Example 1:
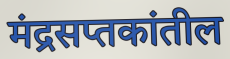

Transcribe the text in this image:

मंद्रसप्तकांतील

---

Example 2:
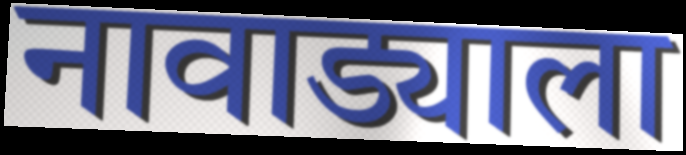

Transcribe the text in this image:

नावाड्याला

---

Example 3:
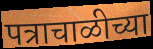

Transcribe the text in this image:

पत्राचाळीच्या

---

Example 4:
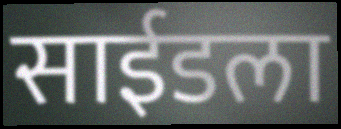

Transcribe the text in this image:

साईडला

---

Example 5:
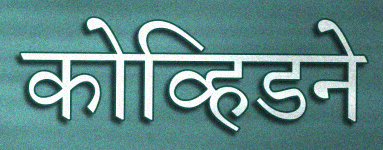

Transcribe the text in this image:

कोव्हिडने